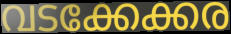
വടക്കേക്കര